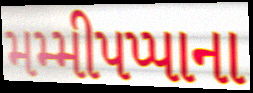
મમ્મીપપ્પાના